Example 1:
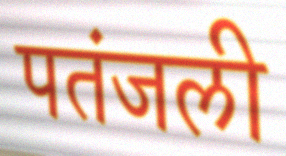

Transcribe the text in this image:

पतंजली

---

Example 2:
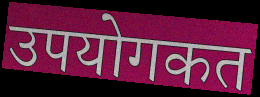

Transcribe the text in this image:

उपयोगकत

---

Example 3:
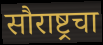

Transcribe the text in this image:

सौराष्ट्रचा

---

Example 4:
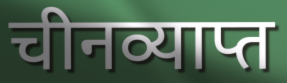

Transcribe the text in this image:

चीनव्याप्त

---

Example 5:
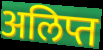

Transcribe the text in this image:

अलिप्त